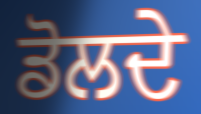
ਡੋਲਦੇ